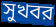
সুখবর